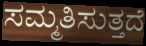
ಸಮ್ಮತಿಸುತ್ತದೆ